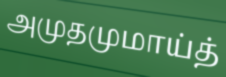
அமுதமுமாய்த்